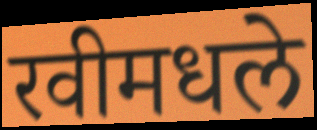
रवीमधले